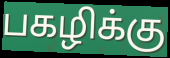
பகழிக்கு